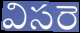
విసరె